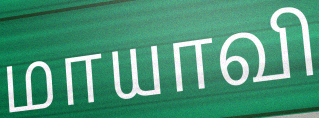
மாயாவி